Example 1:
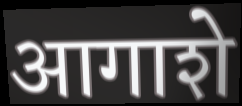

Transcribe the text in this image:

आगाशे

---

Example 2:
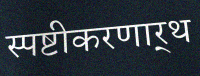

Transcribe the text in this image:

स्पष्टीकरणार्थ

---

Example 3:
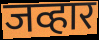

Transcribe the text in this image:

जव्हार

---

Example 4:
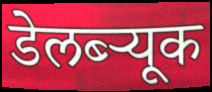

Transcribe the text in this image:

डेलब्ऱ्यूक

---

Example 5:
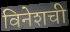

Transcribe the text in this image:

विनेशची